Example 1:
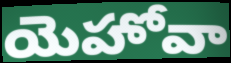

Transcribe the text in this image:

యెహోవా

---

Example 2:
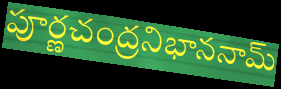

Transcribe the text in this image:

పూర్ణచంద్రనిభాననామ్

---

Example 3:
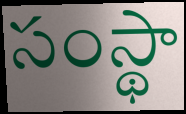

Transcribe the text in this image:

సంస్థా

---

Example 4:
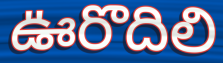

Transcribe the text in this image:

ఊరొదిలి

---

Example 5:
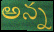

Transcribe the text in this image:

అన్న